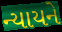
ન્યાયને